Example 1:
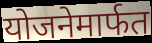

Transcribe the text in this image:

योजनेमार्फत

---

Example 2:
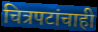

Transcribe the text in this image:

चित्रपटांचाही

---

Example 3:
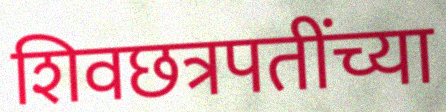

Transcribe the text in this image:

शिवछत्रपतींच्या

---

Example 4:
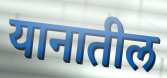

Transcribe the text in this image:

यानातील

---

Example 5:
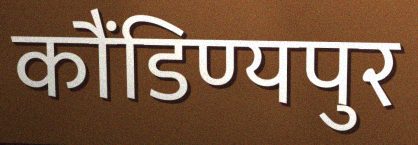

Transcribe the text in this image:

कौंडिण्यपुर